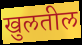
खुलतील